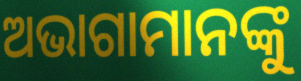
ଅଭାଗାମାନଙ୍କୁ